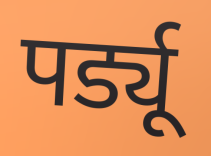
पर्ड्यू